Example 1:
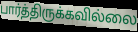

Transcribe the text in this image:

பார்த்திருக்கவில்லை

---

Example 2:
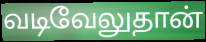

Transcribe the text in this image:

வடிவேலுதான்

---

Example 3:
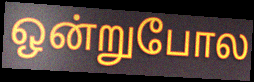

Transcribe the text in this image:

ஒன்றுபோல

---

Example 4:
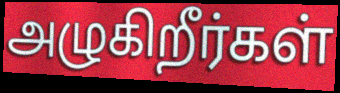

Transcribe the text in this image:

அழுகிறீர்கள்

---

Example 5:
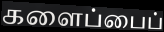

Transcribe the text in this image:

களைப்பைப்